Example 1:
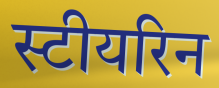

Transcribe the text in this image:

स्टीयरिन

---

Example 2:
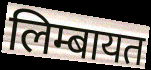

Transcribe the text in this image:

लिम्बायत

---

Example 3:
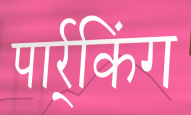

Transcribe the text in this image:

पार्र्किंग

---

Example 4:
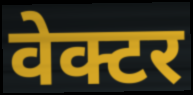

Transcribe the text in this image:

वेक्टर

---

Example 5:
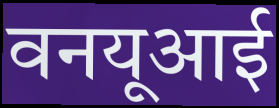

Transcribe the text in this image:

वनयूआई